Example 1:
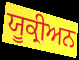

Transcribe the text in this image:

ਯੂਕ੍ਰੀਅਨ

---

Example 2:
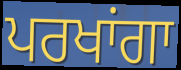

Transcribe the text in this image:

ਪਰਖਾਂਗਾ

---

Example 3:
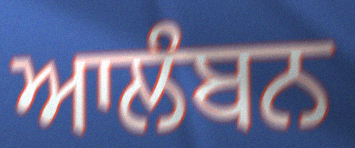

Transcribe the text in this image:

ਆਲੰਬਨ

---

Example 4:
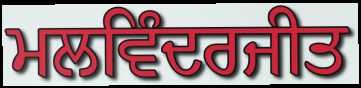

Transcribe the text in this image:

ਮਲਵਿੰਦਰਜੀਤ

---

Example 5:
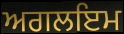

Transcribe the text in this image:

ਅਗਲਇਮ